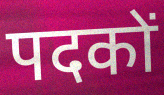
पदकों